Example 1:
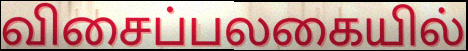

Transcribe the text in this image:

விசைப்பலகையில்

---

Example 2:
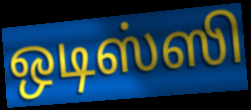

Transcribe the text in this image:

ஒடிஸ்ஸி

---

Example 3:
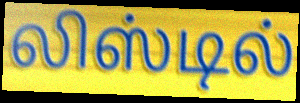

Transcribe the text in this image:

லிஸ்டில்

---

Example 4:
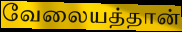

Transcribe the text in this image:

வேலையத்தான்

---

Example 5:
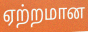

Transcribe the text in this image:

ஏற்றமான